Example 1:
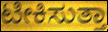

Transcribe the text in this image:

ಟೀಕಿಸುತ್ತಾ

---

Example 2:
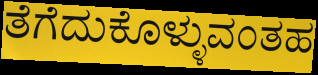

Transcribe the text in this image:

ತೆಗೆದುಕೊಳ್ಳುವಂತಹ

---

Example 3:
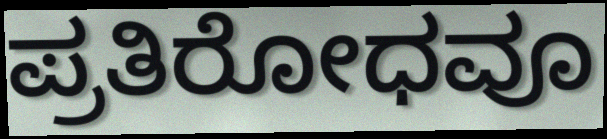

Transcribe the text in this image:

ಪ್ರತಿರೋಧವೂ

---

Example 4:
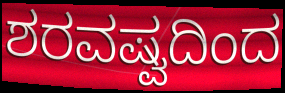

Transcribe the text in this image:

ಶರವಷ್ವದಿಂದ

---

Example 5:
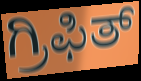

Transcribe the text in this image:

ಗ್ರಿಫಿತ್